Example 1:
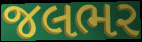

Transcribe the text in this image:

જલભર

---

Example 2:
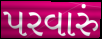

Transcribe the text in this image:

પરવારું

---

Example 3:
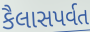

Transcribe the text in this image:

કૈલાસપર્વત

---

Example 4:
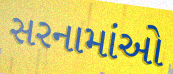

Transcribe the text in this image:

સરનામાંઓ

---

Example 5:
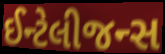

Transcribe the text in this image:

ઈન્ટેલીજન્સ